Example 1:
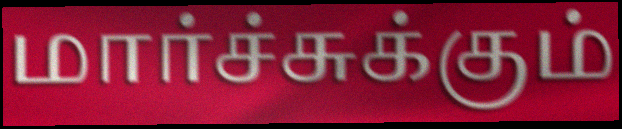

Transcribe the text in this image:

மார்ச்சுக்கும்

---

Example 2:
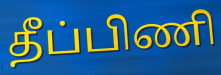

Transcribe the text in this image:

தீப்பிணி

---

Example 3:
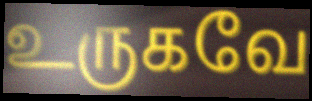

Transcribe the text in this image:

உருகவே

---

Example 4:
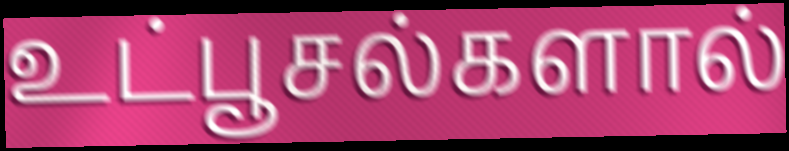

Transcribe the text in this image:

உட்பூசல்களால்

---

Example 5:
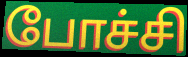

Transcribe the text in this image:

போச்சி